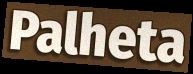
Palheta